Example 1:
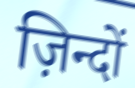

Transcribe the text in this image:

ज़िन्दों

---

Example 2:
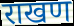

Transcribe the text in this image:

राखण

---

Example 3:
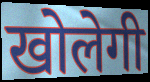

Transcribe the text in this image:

खोलेगी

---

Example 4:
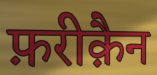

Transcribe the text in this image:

फ़रीक़ैन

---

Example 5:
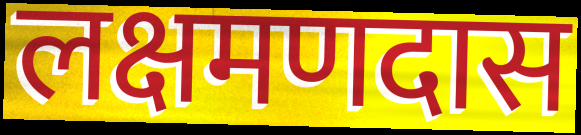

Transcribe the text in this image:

लक्षमणदास